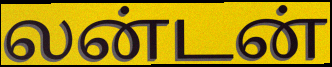
லன்டன்